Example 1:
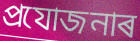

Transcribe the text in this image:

প্ৰযোজনাৰ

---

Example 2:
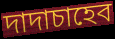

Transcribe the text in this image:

দাদাচাহেব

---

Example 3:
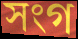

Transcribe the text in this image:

সংগ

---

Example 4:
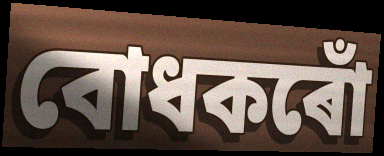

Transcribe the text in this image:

বোধকৰোঁ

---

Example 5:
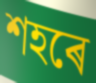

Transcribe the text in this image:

শহৰে